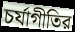
চর্যাগীতির